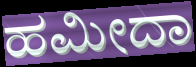
ಹಮೀದಾ